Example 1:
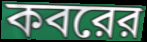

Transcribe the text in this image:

কবরের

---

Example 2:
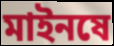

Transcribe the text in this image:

মাইনষে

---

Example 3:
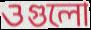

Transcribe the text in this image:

ওগুলো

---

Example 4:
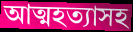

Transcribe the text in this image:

আত্মহত্যাসহ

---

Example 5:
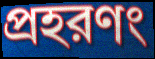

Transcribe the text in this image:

প্রহরণং